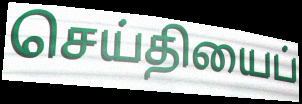
செய்தியைப்